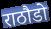
राठौडो